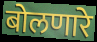
बोलणारे